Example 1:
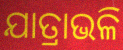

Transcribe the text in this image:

ଯାତ୍ରାଭଳି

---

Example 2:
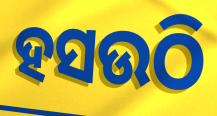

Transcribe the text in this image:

ହସଉଠି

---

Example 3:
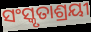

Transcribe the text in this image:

ସଂସ୍କୃତାଶ୍ରୟୀ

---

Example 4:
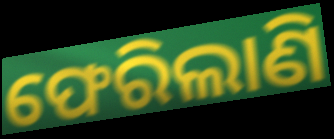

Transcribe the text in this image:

ଫେରିଲାଣି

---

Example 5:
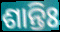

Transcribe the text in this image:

ଶାନ୍ତିଃ